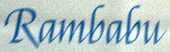
Rambabu